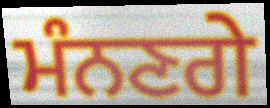
ਮੰਨਣਗੇ